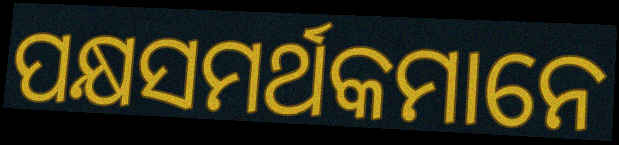
ପକ୍ଷସମର୍ଥକମାନେ